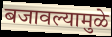
बजावल्यामुळे